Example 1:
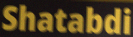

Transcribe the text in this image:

Shatabdi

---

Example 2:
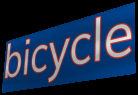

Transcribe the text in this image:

bicycle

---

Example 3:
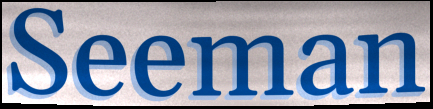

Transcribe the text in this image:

Seeman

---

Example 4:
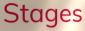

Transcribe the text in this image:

Stages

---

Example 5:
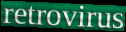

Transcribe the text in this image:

retrovirus